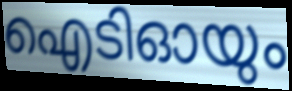
ഐടിഓയും